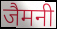
जैमनी